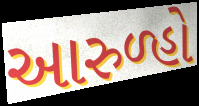
આરુળ્હો